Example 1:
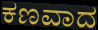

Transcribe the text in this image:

ಕಣವಾದ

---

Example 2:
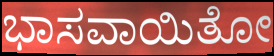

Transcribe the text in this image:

ಭಾಸವಾಯಿತೋ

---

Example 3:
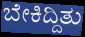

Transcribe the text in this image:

ಬೇಕಿದ್ದಿತು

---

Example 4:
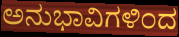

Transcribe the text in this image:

ಅನುಭಾವಿಗಳಿಂದ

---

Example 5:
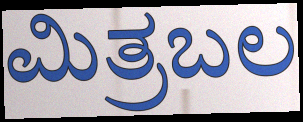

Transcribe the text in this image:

ಮಿತ್ರಬಲ